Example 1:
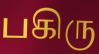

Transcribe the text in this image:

பகிரு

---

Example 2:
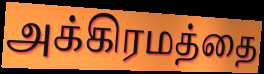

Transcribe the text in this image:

அக்கிரமத்தை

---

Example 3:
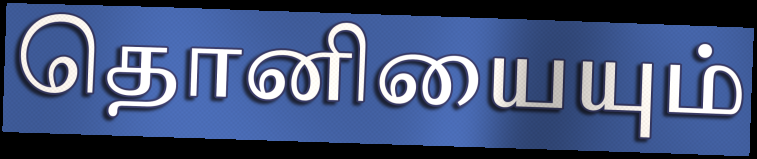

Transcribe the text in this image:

தொனியையும்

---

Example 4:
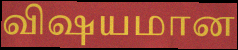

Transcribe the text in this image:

விஷயமான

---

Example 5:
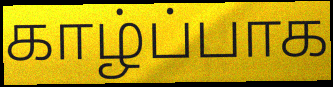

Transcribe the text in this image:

காழ்ப்பாக